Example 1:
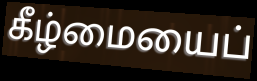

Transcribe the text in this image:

கீழ்மையைப்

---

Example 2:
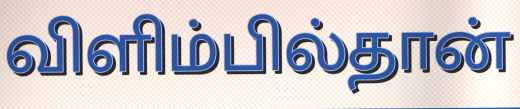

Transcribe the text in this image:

விளிம்பில்தான்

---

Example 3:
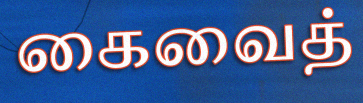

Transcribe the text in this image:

கைவைத்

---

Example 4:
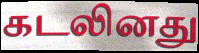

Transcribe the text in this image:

கடலினது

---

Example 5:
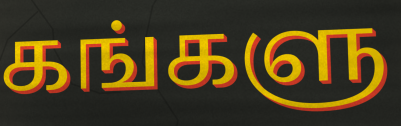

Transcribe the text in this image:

கங்களு